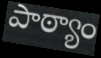
పాఠ్యాం